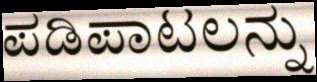
ಪಡಿಪಾಟಲನ್ನು